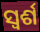
ସ୍ୱର୍ଶ